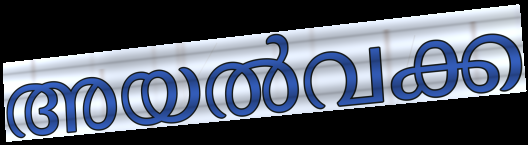
അയൽവക്ക